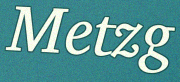
Metzg